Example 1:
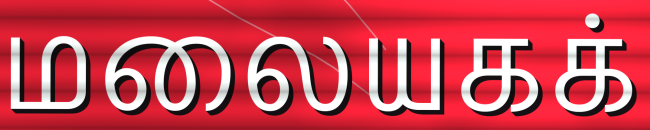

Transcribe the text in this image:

மலையகக்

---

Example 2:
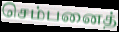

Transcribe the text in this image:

செம்பனைத்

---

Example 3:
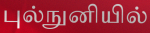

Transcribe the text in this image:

புல்நுனியில்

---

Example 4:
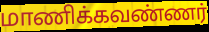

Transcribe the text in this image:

மாணிக்கவண்ணர்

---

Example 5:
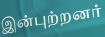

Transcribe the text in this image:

இன்புற்றனர்